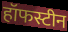
हॉफस्टीन